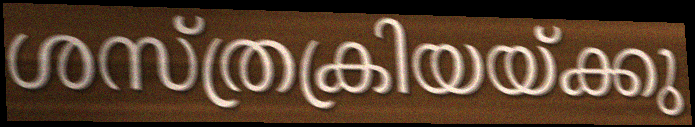
ശസ്ത്രക്രിയയ്ക്കു